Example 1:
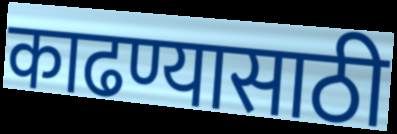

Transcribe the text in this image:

काढण्यासाठी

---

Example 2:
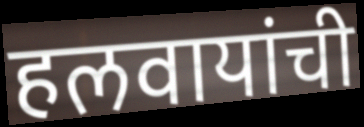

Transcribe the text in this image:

हलवायांची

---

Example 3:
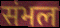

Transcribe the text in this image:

संभल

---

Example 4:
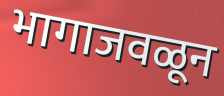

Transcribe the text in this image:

भागाजवळून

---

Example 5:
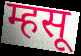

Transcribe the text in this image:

म्हसू